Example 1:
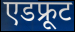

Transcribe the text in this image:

एडफ्रूट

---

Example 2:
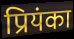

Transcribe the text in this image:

प्रियंका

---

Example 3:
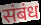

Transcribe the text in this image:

संबंध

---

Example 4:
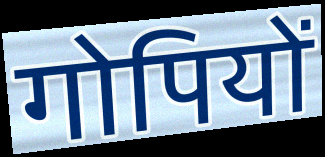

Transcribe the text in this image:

गोपियों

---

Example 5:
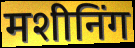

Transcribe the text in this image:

मशीनिंग